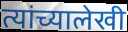
त्यांच्यालेखी